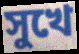
সুখে